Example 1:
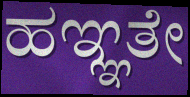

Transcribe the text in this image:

ಹಞ್ಞತೇ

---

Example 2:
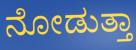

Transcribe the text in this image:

ನೋಡುತ್ತಾ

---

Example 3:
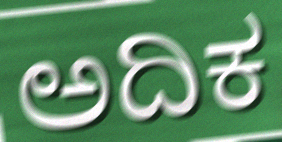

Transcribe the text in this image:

ಅದಿಕ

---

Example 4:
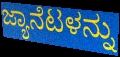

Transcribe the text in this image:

ಜ್ಯಾನೆಟಳನ್ನು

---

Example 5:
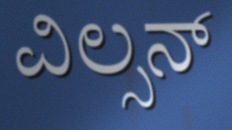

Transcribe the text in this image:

ವಿಲ್ಸನ್